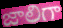
జాలిగా